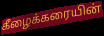
கீழைக்கரையின்